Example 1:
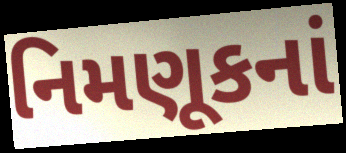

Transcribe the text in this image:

નિમણૂકનાં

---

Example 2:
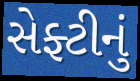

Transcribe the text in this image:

સેફ્ટીનું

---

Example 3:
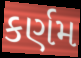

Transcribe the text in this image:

કર્ણમ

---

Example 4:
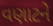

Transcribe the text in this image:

વણાટને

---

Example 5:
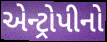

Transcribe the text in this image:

એન્ટ્રોપીનો